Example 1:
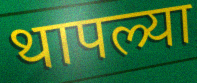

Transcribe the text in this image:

थापल्या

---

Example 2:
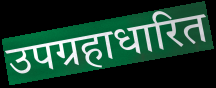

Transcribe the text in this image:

उपग्रहाधारित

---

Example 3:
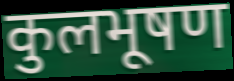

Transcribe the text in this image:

कुलभूषण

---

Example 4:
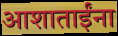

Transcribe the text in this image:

आशाताईंना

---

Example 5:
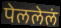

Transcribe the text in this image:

पेललेलं